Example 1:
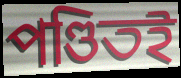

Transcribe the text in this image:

পণ্ডিতই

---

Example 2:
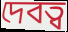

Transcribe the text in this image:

দেবত্ব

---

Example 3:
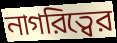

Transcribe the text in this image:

নাগরিত্বের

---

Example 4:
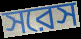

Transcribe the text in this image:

সরেস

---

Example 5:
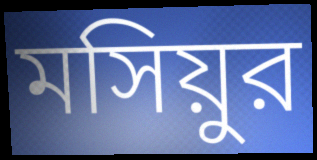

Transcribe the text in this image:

মসিয়ুর